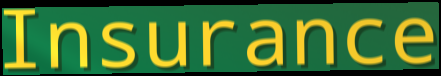
Insurance